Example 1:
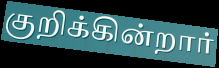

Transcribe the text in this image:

குறிக்கின்றார்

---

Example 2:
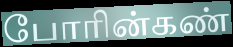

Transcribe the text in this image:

போரின்கண்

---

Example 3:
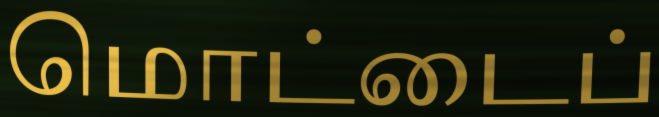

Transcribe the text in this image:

மொட்டைப்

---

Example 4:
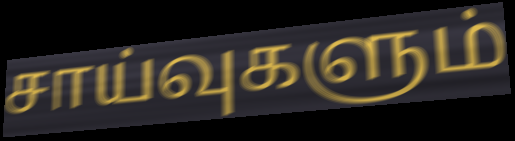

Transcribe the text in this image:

சாய்வுகளும்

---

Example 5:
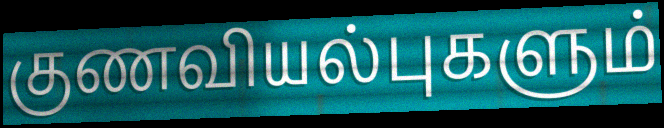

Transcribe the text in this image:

குணவியல்புகளும்